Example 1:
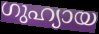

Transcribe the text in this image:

ഗുഹ്യായ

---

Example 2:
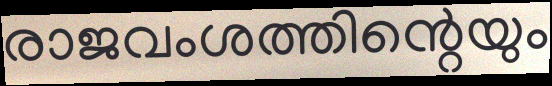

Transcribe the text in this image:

രാജവംശത്തിന്റെയും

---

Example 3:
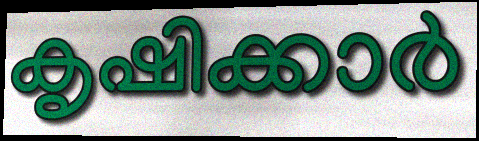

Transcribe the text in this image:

കൃഷിക്കാർ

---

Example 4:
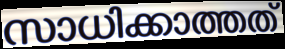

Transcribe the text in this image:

സാധിക്കാത്തത്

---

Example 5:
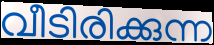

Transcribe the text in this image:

വീടിരിക്കുന്ന